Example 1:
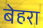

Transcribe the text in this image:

बेहरा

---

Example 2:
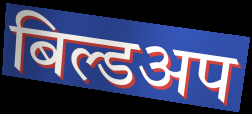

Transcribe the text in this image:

बिल्डअप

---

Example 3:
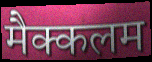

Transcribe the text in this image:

मैक्कलम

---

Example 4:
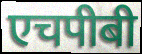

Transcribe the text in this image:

एचपीबी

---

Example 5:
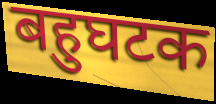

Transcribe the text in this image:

बहुघटक